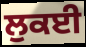
ਲੁਕਈ